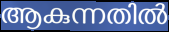
ആകുന്നതിൽ